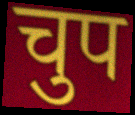
चुप